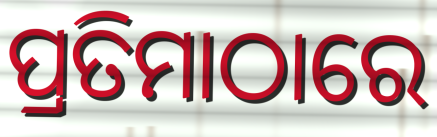
ପ୍ରତିମାଠାରେ